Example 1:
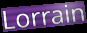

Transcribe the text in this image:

Lorrain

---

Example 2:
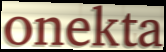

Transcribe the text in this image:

onekta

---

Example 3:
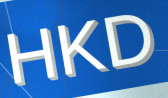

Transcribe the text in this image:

HKD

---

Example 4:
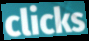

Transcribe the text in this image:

clicks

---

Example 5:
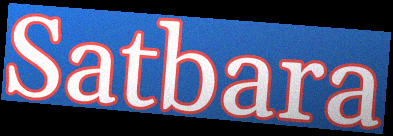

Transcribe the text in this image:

Satbara